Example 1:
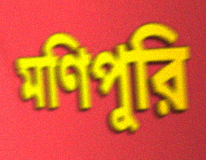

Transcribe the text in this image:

মণিপুরি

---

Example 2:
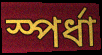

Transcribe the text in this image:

স্পর্ধা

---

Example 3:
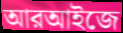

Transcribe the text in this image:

আরআইজে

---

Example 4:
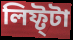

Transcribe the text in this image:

লিফ্ট্টা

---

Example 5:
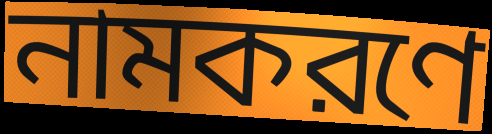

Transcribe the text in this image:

নামকরণে